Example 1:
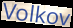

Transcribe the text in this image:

Volkov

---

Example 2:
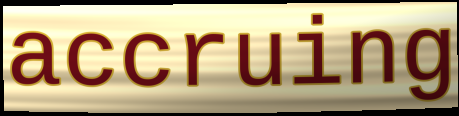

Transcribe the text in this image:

accruing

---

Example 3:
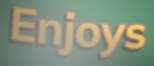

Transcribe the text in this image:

Enjoys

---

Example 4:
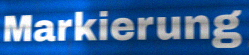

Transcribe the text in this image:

Markierung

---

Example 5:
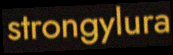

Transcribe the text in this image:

strongylura